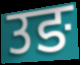
उङ